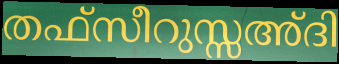
തഫ്സീറുസ്സഅ്ദി